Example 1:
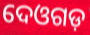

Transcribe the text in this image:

ଦେଓଗଡ଼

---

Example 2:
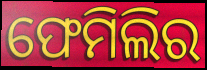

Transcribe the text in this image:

ଫେମିଲିର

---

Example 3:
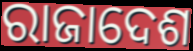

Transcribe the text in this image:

ରାଜାଦେଶ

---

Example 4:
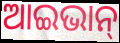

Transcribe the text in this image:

ଆଇଭାନ୍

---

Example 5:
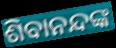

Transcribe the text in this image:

ଶିବାନନ୍ଦଙ୍କ